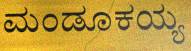
ಮಂಡೂಕಯ್ಯ